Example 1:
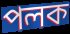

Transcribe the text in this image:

পলক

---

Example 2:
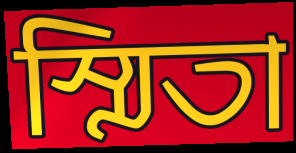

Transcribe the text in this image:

স্মিতা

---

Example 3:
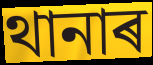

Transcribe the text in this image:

থানাৰ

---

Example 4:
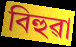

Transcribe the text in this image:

বিহুৱা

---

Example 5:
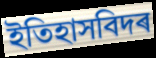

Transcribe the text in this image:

ইতিহাসবিদৰ